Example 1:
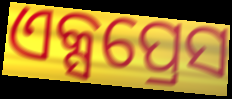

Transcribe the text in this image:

ଏକ୍ସପ୍ରେସ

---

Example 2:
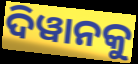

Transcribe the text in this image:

ଦିୱାନକୁ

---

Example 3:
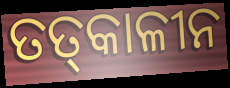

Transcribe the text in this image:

ତତ୍‍କାଳୀନ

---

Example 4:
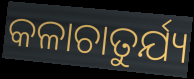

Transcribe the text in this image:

କଳାଚାତୁର୍ଯ୍ୟ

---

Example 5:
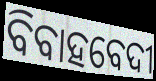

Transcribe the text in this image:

ବିବାହବେଦୀ